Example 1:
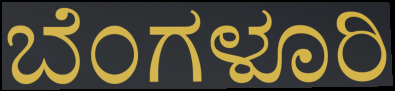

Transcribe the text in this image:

ಬೆಂಗಳೂರಿ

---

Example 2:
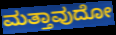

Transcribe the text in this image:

ಮತ್ತಾವುದೋ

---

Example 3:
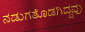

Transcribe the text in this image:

ನಡುಗತೊಡಗಿದ್ದವು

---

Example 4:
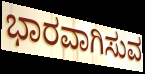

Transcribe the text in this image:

ಭಾರವಾಗಿಸುವ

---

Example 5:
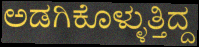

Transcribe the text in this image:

ಅಡಗಿಕೊಳ್ಳುತ್ತಿದ್ದ